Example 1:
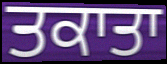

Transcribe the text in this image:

ਤਕਾਤਾ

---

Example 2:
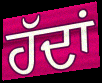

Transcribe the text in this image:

ਹੱਦਾਂ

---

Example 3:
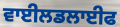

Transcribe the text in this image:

ਵਾਈਲਡਲਾਈਫ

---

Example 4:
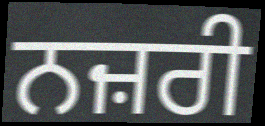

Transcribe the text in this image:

ਨਜ਼ਰੀ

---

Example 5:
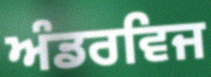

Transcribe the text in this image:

ਅੰਡਰਵਿਜ